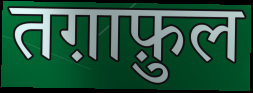
तग़ाफ़ुल